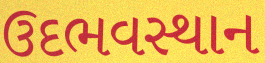
ઉદભવસ્થાન